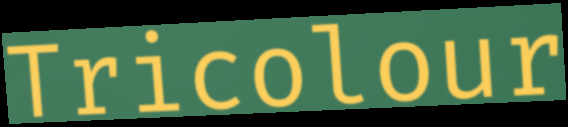
Tricolour